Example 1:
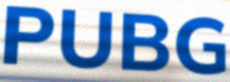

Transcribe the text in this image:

PUBG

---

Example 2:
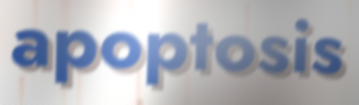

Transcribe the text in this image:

apoptosis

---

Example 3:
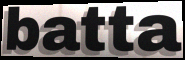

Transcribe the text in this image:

batta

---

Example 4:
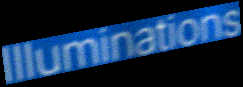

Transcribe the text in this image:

Illuminations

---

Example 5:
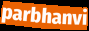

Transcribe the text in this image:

parbhanvi